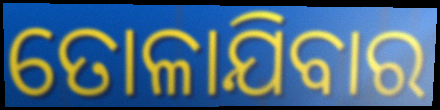
ତୋଳାଯିବାର